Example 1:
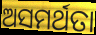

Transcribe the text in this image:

ଅସମର୍ଥତା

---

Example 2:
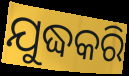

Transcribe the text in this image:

ଯୁଦ୍ଧକରି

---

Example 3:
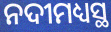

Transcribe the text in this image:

ନଦୀମଧ୍ୟସ୍ଥ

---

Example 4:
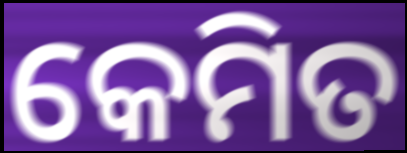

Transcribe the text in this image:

କେମିତ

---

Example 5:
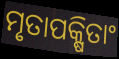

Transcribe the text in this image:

ମୃତାପକ୍ଷିତାଂ